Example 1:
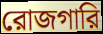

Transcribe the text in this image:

রোজগারি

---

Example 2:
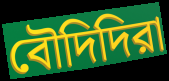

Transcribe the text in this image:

বৌদিদিরা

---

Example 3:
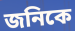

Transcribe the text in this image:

জনিকে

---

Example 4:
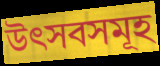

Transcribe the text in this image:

উৎসবসমূহ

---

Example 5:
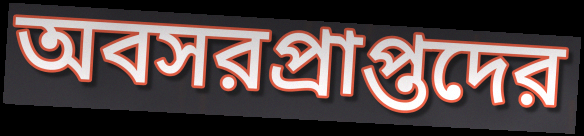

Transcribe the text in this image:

অবসরপ্রাপ্তদের